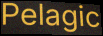
Pelagic